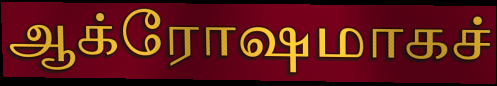
ஆக்ரோஷமாகச்